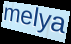
melya